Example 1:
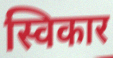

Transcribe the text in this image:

स्विकार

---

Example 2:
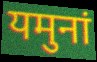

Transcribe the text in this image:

यमुनां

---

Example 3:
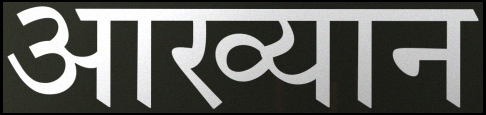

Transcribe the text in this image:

आख्यान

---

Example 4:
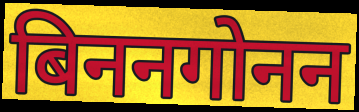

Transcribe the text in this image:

बिननगोनन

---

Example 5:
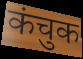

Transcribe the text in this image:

कंचुक